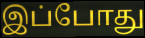
இப்போது